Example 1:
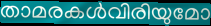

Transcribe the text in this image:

താമരകൾവിരിയുമോ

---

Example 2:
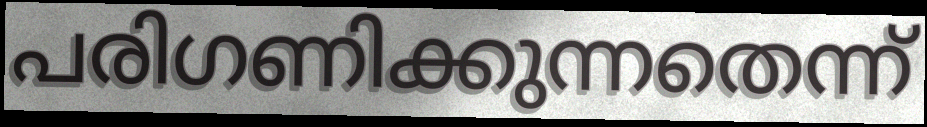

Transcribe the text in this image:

പരിഗണിക്കുന്നതെന്ന്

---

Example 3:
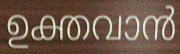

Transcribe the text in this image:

ഉക്തവാൻ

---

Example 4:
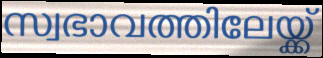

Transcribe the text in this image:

സ്വഭാവത്തിലേയ്ക്ക്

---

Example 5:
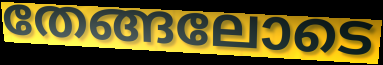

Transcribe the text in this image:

തേങ്ങലോടെ